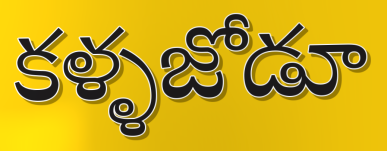
కళ్ళజోడూ